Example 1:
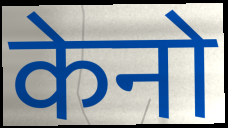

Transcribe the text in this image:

केनो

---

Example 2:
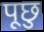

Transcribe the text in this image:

पूछु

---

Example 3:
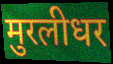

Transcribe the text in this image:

मुरलीधर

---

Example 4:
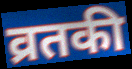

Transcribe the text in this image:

व्रतकी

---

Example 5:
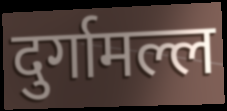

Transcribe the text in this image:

दुर्गामल्ल